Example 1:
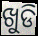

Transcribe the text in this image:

ଖୁଡି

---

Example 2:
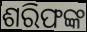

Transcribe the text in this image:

ଶରିଫଙ୍କ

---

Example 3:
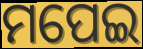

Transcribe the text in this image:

ମପେଇ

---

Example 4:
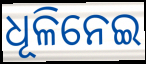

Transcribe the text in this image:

ଧୂଳିନେଇ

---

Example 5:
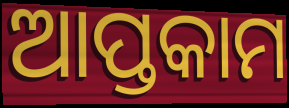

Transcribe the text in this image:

ଆପ୍ତକାମ